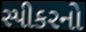
સ્પીકરનો